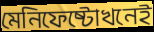
মেনিফেষ্টোখনেই